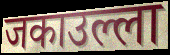
जकाउल्ला